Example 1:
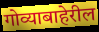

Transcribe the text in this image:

गोव्याबाहेरील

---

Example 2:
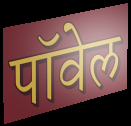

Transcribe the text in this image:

पॉवेल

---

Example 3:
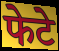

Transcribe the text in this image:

फेटे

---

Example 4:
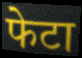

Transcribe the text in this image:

फेटा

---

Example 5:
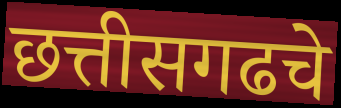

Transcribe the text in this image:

छत्तीसगढचे